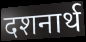
दशनार्थ